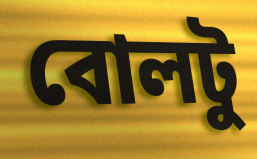
বোলটু